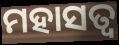
ମହାସତ୍ୱ